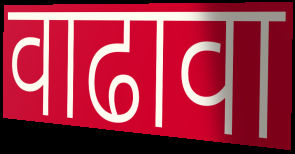
वाढावा